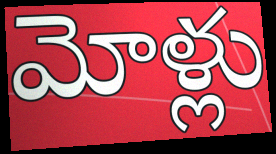
మోళ్లు